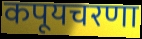
कपूयचरणा